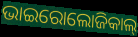
ଭାଇରୋଲୋଜିକାଲ୍